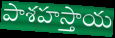
పాశహస్తాయ